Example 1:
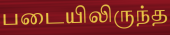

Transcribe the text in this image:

படையிலிருந்த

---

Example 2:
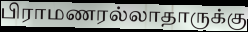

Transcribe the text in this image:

பிராமணரல்லாதாருக்கு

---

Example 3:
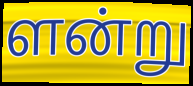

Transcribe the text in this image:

ளன்று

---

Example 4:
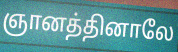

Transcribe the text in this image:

ஞானத்தினாலே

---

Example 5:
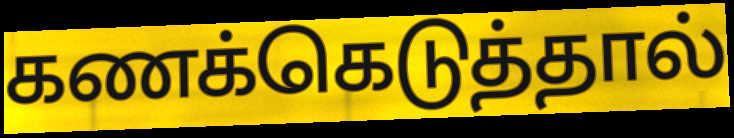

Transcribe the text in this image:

கணக்கெடுத்தால்